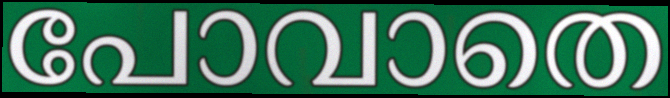
പോവാതെ